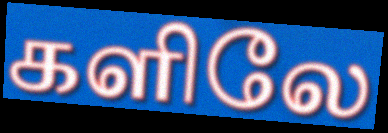
களிலே